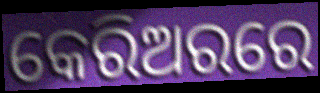
କେରିଅରରେ